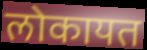
लोकायत